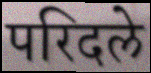
परिदले